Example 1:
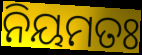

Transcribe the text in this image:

ନିୟମତଃ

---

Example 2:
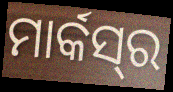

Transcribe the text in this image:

ମାର୍କସ୍‍ର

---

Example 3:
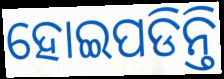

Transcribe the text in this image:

ହୋଇପଡିନ୍ତି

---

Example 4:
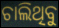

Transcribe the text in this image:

ଚାଲିଥିବୁ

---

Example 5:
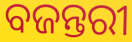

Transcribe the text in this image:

ବଜନ୍ତରୀ